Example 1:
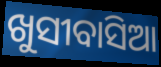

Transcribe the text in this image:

ଖୁସୀବାସିଆ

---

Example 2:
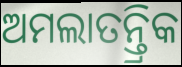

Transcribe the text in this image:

ଅମଲାତନ୍ତ୍ରିକ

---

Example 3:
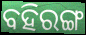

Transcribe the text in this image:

ବହିରଙ୍ଗ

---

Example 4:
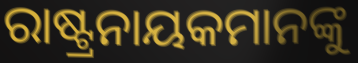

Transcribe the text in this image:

ରାଷ୍ଟ୍ରନାୟକମାନଙ୍କୁ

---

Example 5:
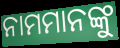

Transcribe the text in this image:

ନାମମାନଙ୍କୁ